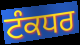
ਟੰਕਧਰ